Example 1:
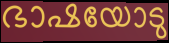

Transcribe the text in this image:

ഭാഷയോടു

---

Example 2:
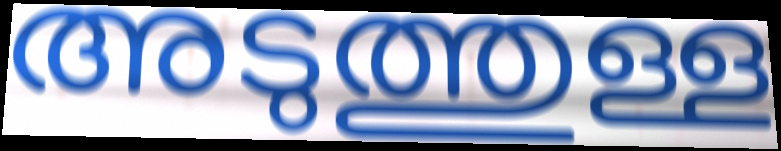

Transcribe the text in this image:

അടുത്തുള്ള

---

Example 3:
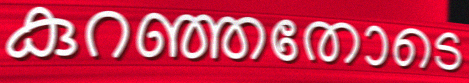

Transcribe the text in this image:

കുറഞ്ഞതോടെ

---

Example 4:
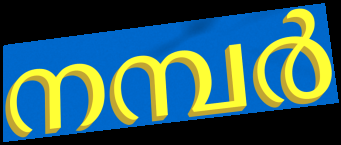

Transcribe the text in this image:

നമ്പർ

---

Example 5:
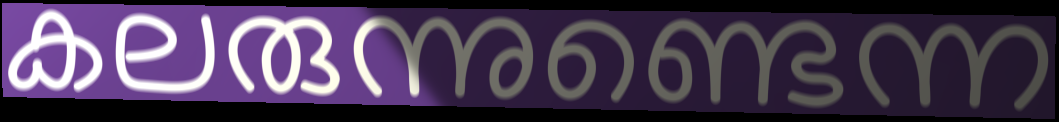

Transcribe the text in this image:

കലരുന്നുണ്ടെന്ന